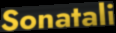
Sonatali